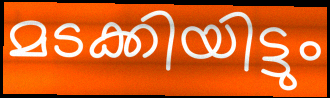
മടക്കിയിട്ടും